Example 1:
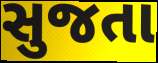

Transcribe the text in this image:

સુજતા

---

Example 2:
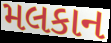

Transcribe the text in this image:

મલકાન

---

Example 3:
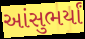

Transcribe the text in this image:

આંસુભર્યાં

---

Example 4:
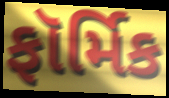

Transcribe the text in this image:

ફૉર્મિક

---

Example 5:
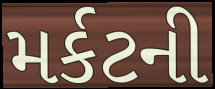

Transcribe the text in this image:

મર્કટની